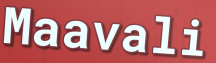
Maavali